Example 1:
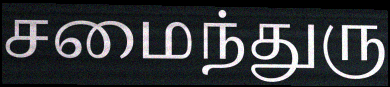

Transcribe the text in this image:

சமைந்துரு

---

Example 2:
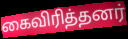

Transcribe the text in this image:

கைவிரித்தனர்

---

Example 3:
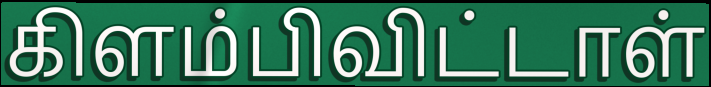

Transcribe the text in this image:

கிளம்பிவிட்டாள்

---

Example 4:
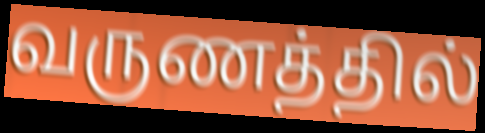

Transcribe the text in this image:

வருணத்தில்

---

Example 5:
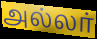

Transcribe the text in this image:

அல்லர்